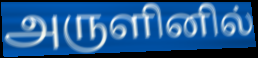
அருளினில்